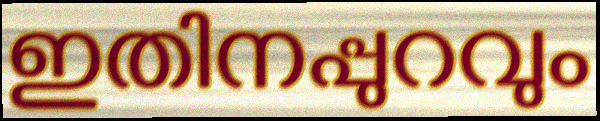
ഇതിനപ്പുറവും